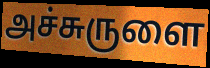
அச்சுருளை